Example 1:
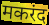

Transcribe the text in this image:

मकरंद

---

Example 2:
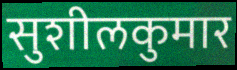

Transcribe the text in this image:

सुशीलकुमार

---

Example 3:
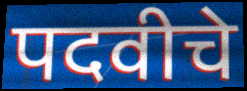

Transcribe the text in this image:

पदवीचे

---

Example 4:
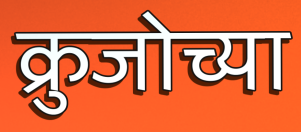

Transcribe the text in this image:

क्रुजोच्या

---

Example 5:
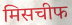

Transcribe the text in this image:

मिसचीफ